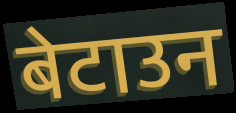
बेटाउन